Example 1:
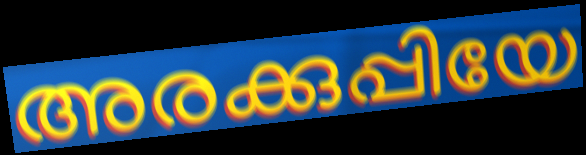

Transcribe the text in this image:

അരക്കുപ്പിയേ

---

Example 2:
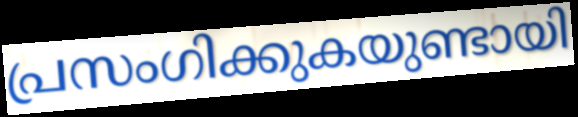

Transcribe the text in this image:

പ്രസംഗിക്കുകയുണ്ടായി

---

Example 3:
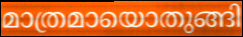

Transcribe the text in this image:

മാത്രമായൊതുങ്ങി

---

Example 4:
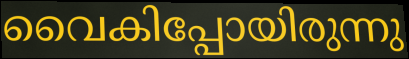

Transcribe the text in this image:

വൈകിപ്പോയിരുന്നു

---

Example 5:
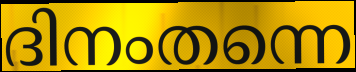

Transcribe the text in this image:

ദിനംതന്നെ